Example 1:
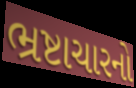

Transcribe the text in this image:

ભ્રષ્ટાચારનો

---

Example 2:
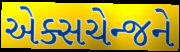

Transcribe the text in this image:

એક્સચેન્જને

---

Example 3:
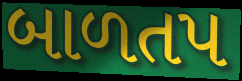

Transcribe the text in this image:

બાળતપ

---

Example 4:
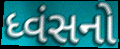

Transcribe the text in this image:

ધ્વંસનો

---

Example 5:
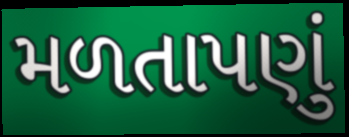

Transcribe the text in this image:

મળતાપણું